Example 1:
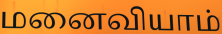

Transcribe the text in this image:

மனைவியாம்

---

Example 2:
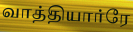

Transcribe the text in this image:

வாத்தியார்ரே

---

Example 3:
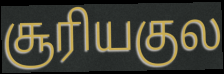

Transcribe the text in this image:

சூரியகுல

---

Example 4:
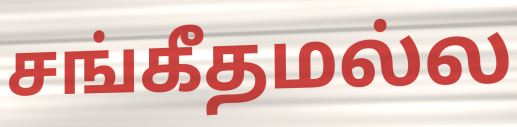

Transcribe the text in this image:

சங்கீதமல்ல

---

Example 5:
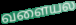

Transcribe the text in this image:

வளையல